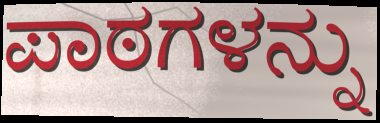
ಪಾಠಗಳನ್ನು